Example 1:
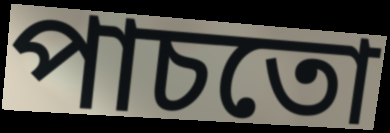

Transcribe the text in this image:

পাচতো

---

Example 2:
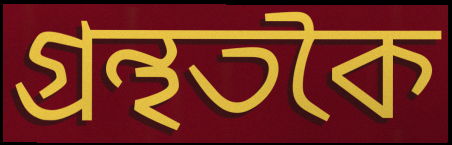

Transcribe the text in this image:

গ্ৰন্থতকৈ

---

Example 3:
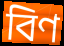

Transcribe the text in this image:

বিণ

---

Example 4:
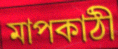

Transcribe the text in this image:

মাপকাঠী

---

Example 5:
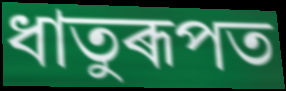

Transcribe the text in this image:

ধাতুৰূপত